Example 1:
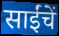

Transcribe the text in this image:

साईंचें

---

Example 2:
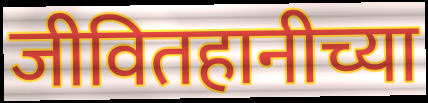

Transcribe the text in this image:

जीवितहानीच्या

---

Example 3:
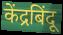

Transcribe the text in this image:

केंद्रबिंदू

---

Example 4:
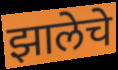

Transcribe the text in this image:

झालेचे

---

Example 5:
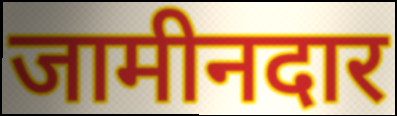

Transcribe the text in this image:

जामीनदार